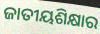
ଜାତୀୟଶିକ୍ଷାର